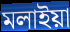
মলাইয়া